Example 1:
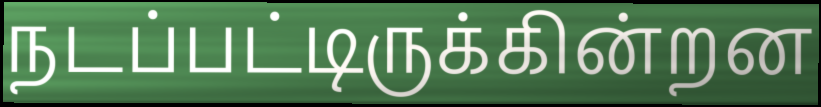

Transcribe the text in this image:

நடப்பட்டிருக்கின்றன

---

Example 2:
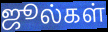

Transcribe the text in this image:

ஜூல்கள்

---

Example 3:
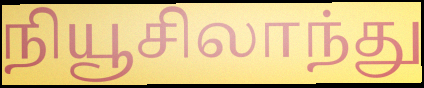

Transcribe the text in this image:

நியூசிலாந்து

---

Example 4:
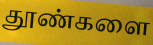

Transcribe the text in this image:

தூண்களை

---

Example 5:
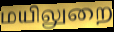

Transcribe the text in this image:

மயிலுறை